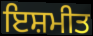
ਇਸ਼ਮੀਤ